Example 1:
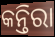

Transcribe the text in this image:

କନ୍ତିରା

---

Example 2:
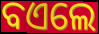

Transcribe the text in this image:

ବଏଲେ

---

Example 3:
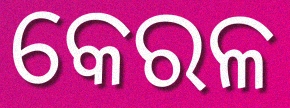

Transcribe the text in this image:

କେରଳ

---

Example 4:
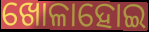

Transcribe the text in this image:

ଖୋଳାହୋଇ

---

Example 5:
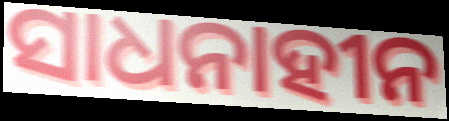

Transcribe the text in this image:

ସାଧନାହୀନ